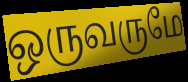
ஒருவருமே